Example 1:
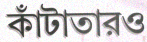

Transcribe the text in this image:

কাঁটাতারও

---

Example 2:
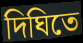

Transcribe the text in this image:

দিঘিতে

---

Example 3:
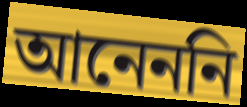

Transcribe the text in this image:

আনেননি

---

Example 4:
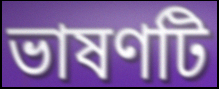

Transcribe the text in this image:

ভাষণটি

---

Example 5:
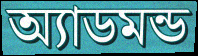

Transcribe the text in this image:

অ্যাডমন্ড